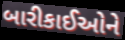
બારીકાઈઓને